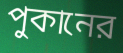
পুকানের